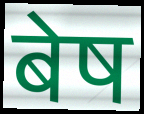
बेष